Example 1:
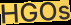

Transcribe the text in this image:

HGOs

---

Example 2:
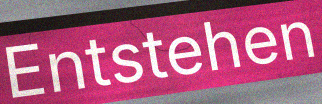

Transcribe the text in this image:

Entstehen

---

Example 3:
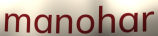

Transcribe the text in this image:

manohar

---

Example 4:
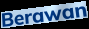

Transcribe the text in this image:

Berawan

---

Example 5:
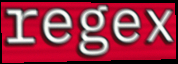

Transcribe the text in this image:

regex